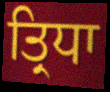
ਤ੍ਰਿਧਾ